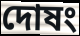
দোষং